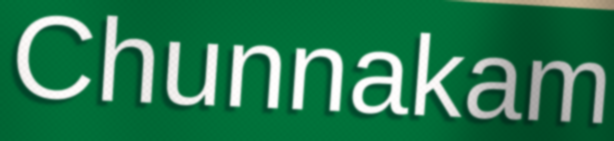
Chunnakam